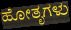
ಹೋತೃಗಳು